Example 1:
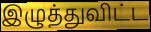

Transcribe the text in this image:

இழுத்துவிட்ட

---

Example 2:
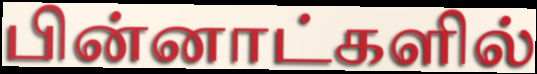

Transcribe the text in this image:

பின்னாட்களில்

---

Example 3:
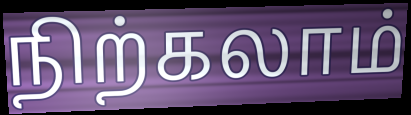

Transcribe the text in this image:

நிற்கலாம்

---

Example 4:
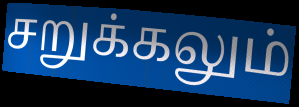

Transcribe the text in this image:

சறுக்கலும்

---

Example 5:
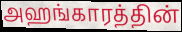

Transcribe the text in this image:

அஹங்காரத்தின்